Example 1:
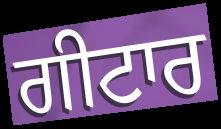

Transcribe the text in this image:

ਗੀਟਾਰ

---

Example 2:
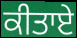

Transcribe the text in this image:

ਕੀਤਾਏ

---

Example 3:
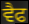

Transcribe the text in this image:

ਵੈਫ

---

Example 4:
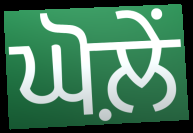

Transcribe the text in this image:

ਘੋਲ਼ੇਂ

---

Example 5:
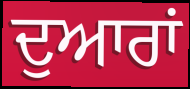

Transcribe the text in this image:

ਦੁਆਰਾਂ